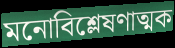
মনোবিশ্লেষণাত্মক